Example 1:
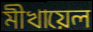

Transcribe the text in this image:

মীখায়েল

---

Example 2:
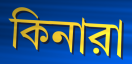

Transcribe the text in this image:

কিনারা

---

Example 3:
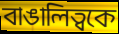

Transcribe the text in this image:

বাঙালিত্বকে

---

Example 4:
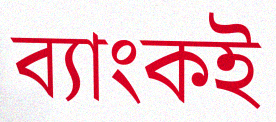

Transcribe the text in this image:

ব্যাংকই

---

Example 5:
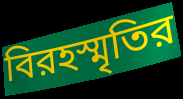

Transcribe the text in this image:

বিরহস্মৃতির